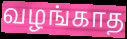
வழங்காத